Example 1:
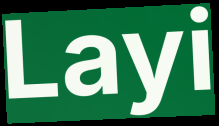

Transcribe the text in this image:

Layi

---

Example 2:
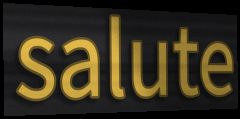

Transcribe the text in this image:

salute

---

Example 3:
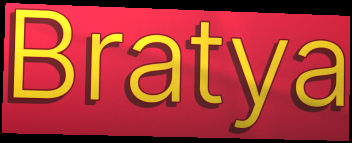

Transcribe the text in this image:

Bratya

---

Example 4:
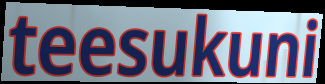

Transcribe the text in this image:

teesukuni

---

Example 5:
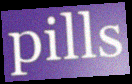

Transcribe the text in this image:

pills